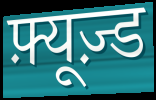
फ़्यूज़्ड